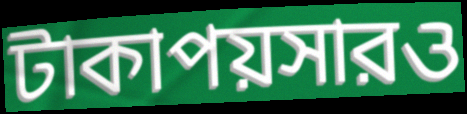
টাকাপয়সারও